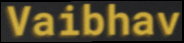
Vaibhav